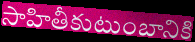
సాహితీకుటుంబానికి